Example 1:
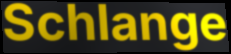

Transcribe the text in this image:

Schlange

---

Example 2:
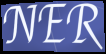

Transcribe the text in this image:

NER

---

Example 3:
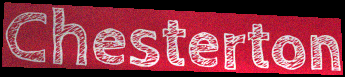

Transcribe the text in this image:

Chesterton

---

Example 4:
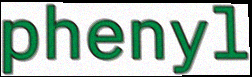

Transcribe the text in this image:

phenyl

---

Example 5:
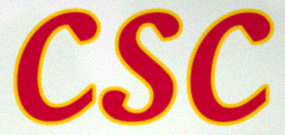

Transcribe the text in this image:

csc